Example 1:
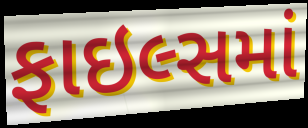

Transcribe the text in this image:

ફાઇલ્સમાં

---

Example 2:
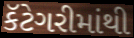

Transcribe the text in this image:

કૅટેગરીમાંથી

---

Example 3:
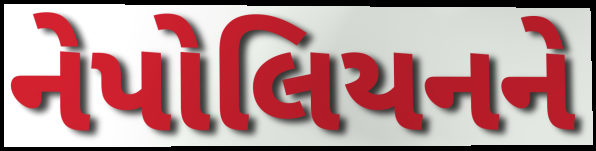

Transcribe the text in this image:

નેપોલિયનને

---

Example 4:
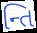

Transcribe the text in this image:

ન્તિ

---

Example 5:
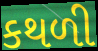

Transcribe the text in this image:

કથળી